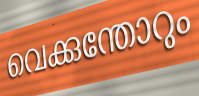
വെക്കുന്തോറും